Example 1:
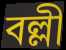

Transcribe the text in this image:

বল্লী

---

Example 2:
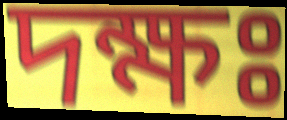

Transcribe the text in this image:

দক্ষঃ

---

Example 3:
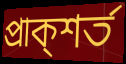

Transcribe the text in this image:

প্রাক্‌শর্ত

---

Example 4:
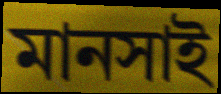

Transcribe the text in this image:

মানসাই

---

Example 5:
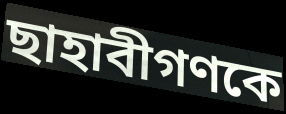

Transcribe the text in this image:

ছাহাবীগণকে